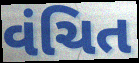
વંચિત